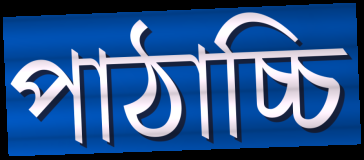
পাঠাচ্চি